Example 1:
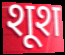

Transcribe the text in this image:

शूश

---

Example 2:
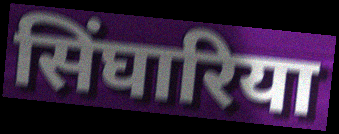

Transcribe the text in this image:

सिंघारिया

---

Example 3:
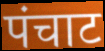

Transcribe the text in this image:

पंचाट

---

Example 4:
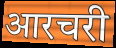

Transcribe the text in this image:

आरचरी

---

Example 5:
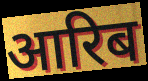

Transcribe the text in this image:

आरिब